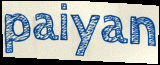
paiyan